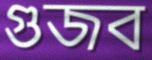
গুজব